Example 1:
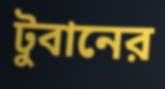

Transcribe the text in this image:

টুবানের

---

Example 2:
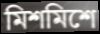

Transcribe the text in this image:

মিশমিশে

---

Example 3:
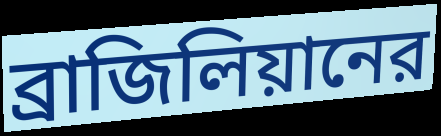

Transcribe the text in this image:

ব্রাজিলিয়ানের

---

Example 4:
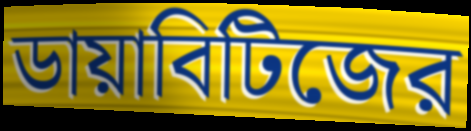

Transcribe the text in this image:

ডায়াবিটিজের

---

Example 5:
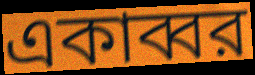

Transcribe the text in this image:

একাব্বর